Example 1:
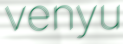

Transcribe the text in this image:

venyu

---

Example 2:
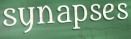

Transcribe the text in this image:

synapses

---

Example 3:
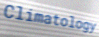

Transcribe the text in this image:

Climatology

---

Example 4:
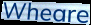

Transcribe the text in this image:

Wheare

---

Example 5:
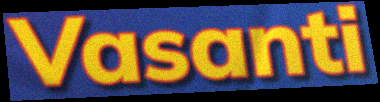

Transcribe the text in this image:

Vasanti